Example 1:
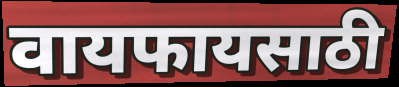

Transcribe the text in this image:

वायफायसाठी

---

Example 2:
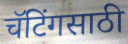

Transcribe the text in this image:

चॅटिंगसाठी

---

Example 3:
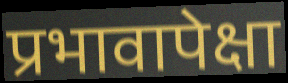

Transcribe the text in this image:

प्रभावापेक्षा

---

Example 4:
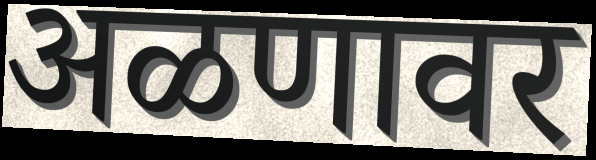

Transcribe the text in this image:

अळणावर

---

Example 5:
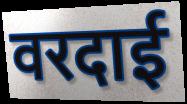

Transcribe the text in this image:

वरदाई